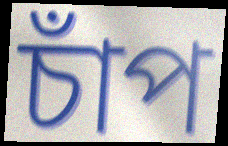
চাঁপ